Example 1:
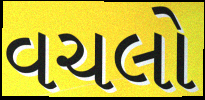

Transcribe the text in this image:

વચલો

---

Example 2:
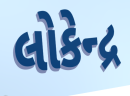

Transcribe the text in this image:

લોકેન્દ્ર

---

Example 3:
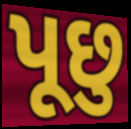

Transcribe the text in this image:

પૂછુ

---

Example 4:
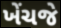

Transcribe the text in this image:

ખેંચજે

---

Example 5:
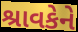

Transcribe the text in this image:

શ્રાવકેને